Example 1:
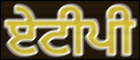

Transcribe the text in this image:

ਏਟੀਪੀ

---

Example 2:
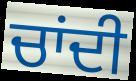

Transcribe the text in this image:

ਚਾਂਦੀ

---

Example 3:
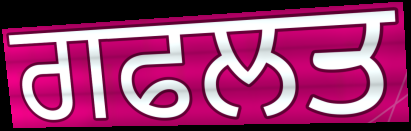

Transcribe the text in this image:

ਗਫਲਤ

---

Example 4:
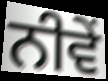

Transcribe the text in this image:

ਨੀਵੇਂ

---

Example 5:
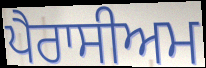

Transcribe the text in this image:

ਪੈਰਾਸੀਅਮ